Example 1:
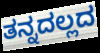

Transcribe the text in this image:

ತನ್ನದಲ್ಲದ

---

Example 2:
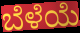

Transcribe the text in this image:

ಬೆಳೆಯೆ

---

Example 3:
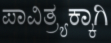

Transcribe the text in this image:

ಪಾವಿತ್ರ್ಯಕ್ಕಾಗಿ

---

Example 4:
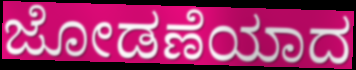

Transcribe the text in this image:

ಜೋಡಣೆಯಾದ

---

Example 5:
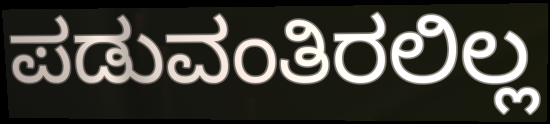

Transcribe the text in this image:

ಪಡುವಂತಿರಲಿಲ್ಲ